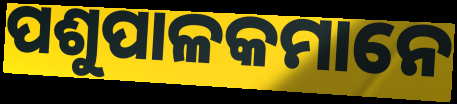
ପଶୁପାଳକମାନେ